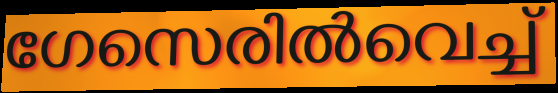
ഗേസെരിൽവെച്ച്